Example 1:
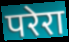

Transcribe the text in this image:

परेरा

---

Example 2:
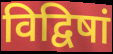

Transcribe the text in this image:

विद्विषां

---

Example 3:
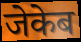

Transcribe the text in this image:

जेकेब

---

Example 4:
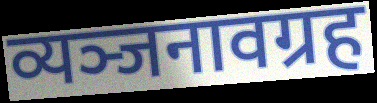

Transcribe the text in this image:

व्यञ्जनावग्रह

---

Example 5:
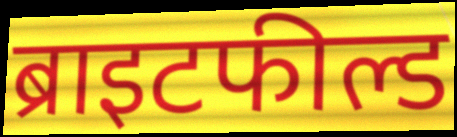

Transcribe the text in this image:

ब्राइटफील्ड